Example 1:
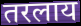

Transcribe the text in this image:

तरलाय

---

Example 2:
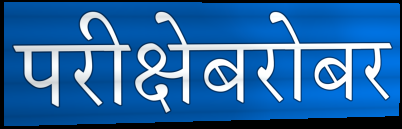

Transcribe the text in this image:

परीक्षेबरोबर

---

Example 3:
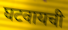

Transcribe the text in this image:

घटवायची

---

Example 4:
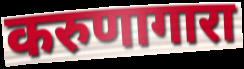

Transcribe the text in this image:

करुणागारा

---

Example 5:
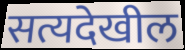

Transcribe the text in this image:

सत्यदेखील